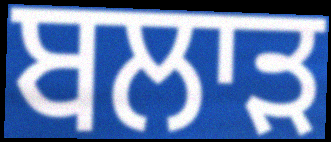
ਬਲਾੜ